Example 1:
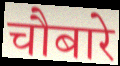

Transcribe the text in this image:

चौबारे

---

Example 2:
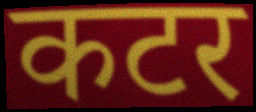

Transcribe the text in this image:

कटर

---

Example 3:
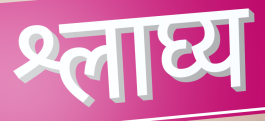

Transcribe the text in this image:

श्लाघ्य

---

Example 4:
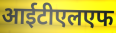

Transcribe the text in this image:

आईटीएलएफ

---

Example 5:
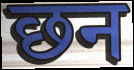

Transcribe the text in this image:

छन